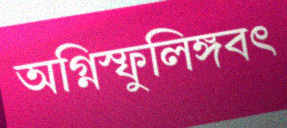
অগ্নিস্ফুলিঙ্গবৎ